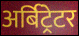
अर्बिट्रेटर